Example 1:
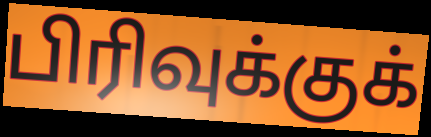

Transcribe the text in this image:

பிரிவுக்குக்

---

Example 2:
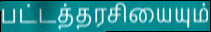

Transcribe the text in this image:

பட்டத்தரசியையும்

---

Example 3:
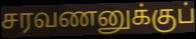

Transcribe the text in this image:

சரவணனுக்குப்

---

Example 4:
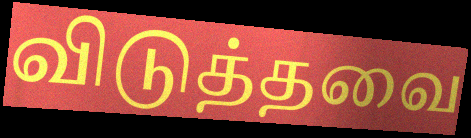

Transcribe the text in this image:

விடுத்தவை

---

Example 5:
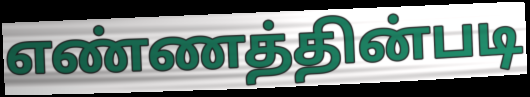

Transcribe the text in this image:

எண்ணத்தின்படி